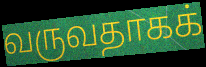
வருவதாகக்